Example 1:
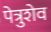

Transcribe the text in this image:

पेत्रुशेव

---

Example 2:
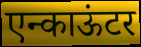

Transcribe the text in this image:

एन्काऊंटर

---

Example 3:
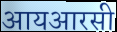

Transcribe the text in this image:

आयआरसी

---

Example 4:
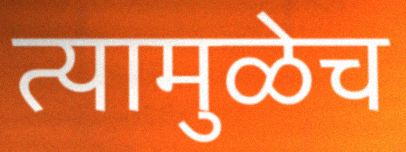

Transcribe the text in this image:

त्यामुळेच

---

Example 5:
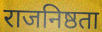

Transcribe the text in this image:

राजनिष्ठता